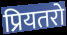
प्रियतरो